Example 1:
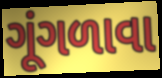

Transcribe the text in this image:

ગૂંગળાવા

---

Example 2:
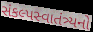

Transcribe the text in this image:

સંકલ્પસ્વાતંત્ર્યનો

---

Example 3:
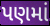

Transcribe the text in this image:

પણમાં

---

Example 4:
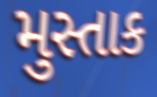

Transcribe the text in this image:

મુસ્તાક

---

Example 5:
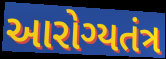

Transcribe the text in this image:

આરોગ્યતંત્ર